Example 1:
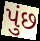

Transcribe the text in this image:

પુંછ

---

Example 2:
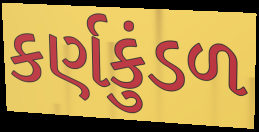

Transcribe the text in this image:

કર્ણકુંડળ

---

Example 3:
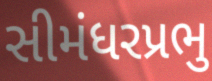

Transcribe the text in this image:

સીમંધરપ્રભુ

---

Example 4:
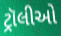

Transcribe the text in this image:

ટ્રૉલીઓ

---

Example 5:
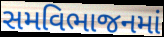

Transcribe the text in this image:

સમવિભાજનમાં